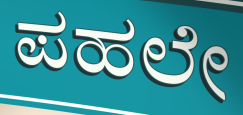
ಪಹಲೇ